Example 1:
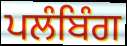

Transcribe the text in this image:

ਪਲੰਬਿੰਗ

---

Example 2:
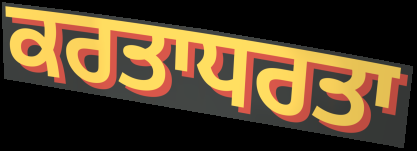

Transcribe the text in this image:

ਕਰਤਾਧਰਤਾ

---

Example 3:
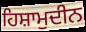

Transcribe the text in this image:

ਹਿਸ਼ਾਮੁਦੀਨ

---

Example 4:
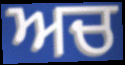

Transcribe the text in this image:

ਅਚ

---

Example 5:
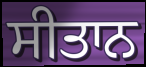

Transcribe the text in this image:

ਸੀਤਾਨ